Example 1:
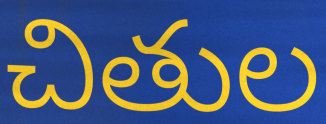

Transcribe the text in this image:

చితుల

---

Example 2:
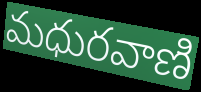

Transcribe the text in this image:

మధురవాణి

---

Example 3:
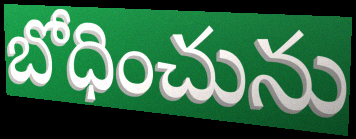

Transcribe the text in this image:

బోధించును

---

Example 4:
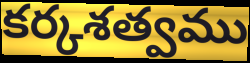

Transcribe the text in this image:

కర్కశత్వము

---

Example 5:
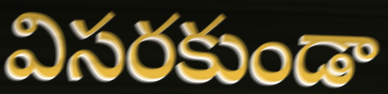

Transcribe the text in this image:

విసరకుండా